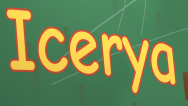
Icerya